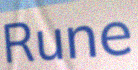
Rune